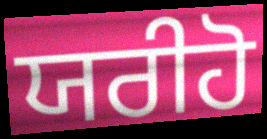
ਯਰੀਹੋ